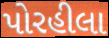
પોરહીલા